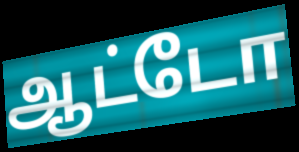
ஆட்டோ